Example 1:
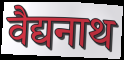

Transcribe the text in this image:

वैद्यनाथ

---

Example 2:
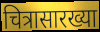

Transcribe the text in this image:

चित्रासारख्या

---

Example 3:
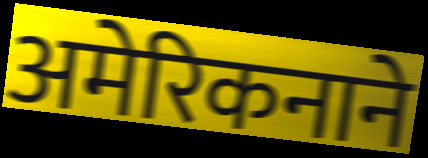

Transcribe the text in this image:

अमेरिकनाने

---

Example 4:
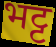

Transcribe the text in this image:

भट्ट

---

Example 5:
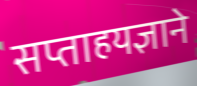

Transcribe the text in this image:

सप्ताहयज्ञाने